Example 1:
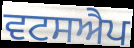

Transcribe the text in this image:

ਵਟਸਐਪ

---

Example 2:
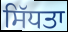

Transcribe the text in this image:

ਸਿੱਧਤਾ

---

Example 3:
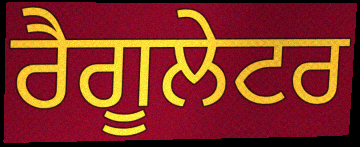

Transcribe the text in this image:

ਰੈਗੂਲੇਟਰ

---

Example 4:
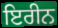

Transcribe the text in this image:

ਇਰੀਨ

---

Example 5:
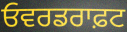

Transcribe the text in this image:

ਓਵਰਡਰਾਫ਼ਟ